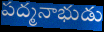
పద్మనాభుడు